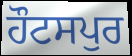
ਹੌਟਸਪੁਰ